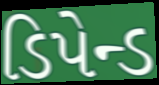
ડિપેન્ડ